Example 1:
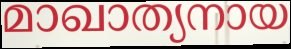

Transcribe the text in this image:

മാഖാത്യനായ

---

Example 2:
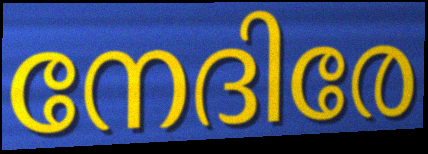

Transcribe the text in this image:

നേദിരേ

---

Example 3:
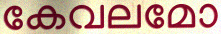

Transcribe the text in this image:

കേവലമോ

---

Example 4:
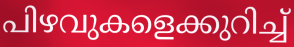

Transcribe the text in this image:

പിഴവുകളെക്കുറിച്ച്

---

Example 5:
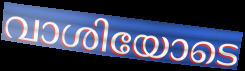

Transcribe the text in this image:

വാശിയോടെ